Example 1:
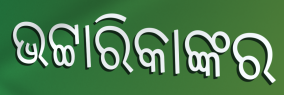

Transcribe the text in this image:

ଭଟ୍ଟାରିକାଙ୍କର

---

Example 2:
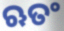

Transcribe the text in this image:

ଋତଂ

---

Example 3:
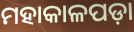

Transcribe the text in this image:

ମହାକାଳପଡ଼ା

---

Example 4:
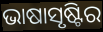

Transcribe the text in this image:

ଭାଷାସୃଷ୍ଟିର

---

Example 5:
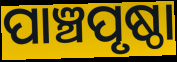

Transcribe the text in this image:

ପାଞ୍ଚପୃଷ୍ଠା